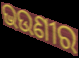
ଭଉଣୀର